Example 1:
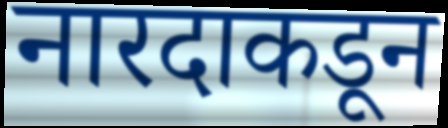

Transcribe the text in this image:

नारदाकडून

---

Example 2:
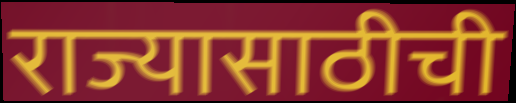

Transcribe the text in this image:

राज्यासाठीची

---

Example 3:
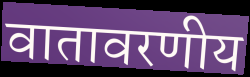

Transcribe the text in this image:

वातावरणीय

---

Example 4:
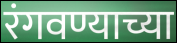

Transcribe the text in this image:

रंगवण्याच्या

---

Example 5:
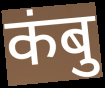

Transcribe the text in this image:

कंबु